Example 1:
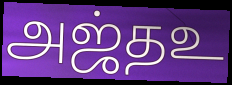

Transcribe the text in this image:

அஜ்தஉ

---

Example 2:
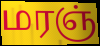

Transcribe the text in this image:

மரஞ்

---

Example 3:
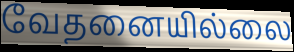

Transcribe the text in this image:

வேதனையில்லை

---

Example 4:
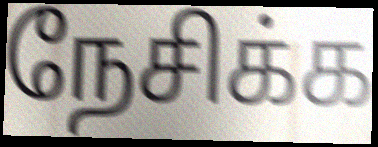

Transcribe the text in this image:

நேசிக்க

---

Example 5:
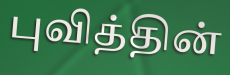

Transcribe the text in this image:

புவித்தின்